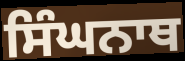
ਸਿੰਘਨਾਥ